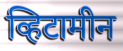
व्हिटामीन